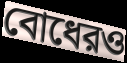
বোধেরও